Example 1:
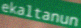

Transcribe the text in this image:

ekaltanun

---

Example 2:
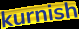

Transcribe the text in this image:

kurnish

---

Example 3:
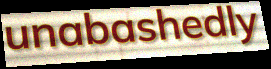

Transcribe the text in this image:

unabashedly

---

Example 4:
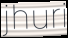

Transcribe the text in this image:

jhuri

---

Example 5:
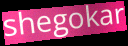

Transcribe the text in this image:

shegokar